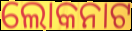
ଲୋକନାଟ